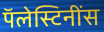
पॅलेस्टिनींस